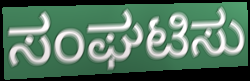
ಸಂಘಟಿಸು